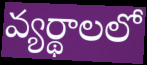
వ్యర్థాలలో